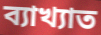
ব্যাখ্যাত